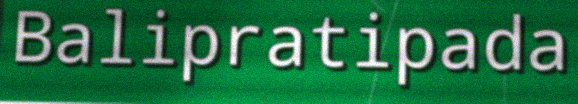
Balipratipada